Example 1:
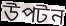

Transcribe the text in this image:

উপটন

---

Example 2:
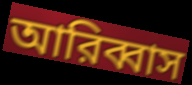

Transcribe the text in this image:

আরিব্বাস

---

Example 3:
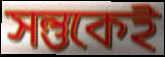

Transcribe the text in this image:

সন্তুকেই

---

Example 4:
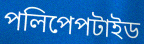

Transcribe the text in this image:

পলিপেপটাইড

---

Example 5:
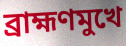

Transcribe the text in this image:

ব্রাহ্মণমুখে